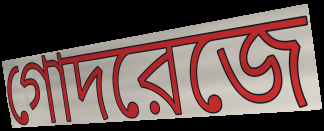
গোদরেজে